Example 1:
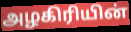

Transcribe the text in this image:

அழகிரியின்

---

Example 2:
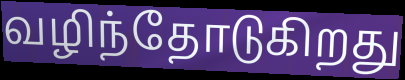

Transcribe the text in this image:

வழிந்தோடுகிறது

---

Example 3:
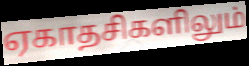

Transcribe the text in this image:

ஏகாதசிகளிலும்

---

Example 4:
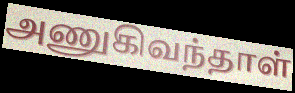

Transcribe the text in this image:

அணுகிவந்தாள்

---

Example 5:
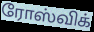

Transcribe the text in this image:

ரோஸ்விக்